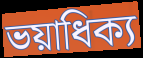
ভয়াধিক্য